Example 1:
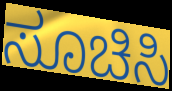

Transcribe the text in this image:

ಸೂಚಿಸಿ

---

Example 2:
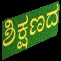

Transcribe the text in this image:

ಶಿಕ್ಷಣದ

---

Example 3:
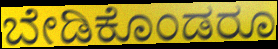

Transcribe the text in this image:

ಬೇಡಿಕೊಂಡರೂ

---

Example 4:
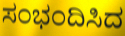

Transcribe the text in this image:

ಸಂಭಂದಿಸಿದ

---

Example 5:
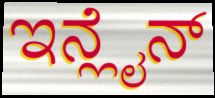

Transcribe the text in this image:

ಇನ್ಲೈನ್